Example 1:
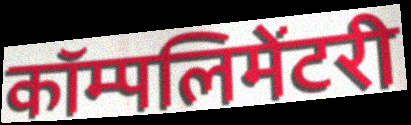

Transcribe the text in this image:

कॉम्पलिमेंटरी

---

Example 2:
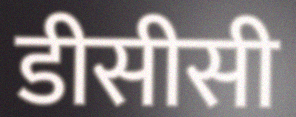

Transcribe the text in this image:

डीसीसी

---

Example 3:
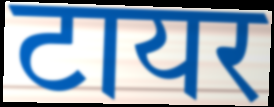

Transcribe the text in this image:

टायर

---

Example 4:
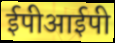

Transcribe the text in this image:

ईपीआईपी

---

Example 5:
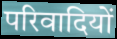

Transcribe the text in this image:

परिवादियों